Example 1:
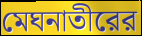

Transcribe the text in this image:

মেঘনাতীরের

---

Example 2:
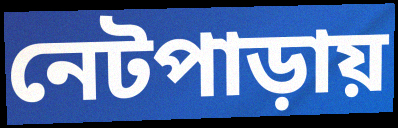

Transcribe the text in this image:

নেটপাড়ায়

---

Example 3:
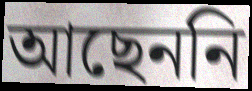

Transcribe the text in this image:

আছেননি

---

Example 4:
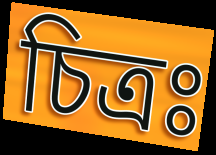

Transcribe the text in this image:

চিত্রঃ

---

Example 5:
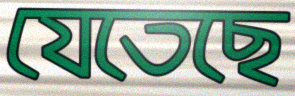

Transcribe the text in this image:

যেতেছে